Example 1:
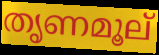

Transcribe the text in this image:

തൃണമൂല്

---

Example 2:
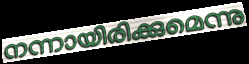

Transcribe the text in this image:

നന്നായിരിക്കുമെന്നു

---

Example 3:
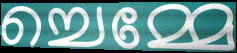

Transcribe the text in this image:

ച്ചെമ്മേ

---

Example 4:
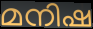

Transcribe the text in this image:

മനിഷ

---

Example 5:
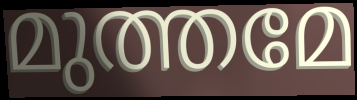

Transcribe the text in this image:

മുത്തമേ